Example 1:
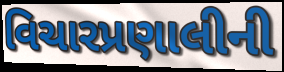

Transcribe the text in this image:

વિચારપ્રણાલીની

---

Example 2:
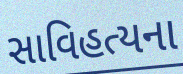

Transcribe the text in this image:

સાવિહત્યના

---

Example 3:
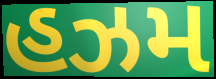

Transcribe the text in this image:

હઝમ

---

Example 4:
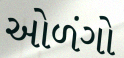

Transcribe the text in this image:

ઓળંગો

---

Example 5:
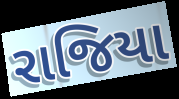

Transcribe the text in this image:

રાજિયા